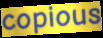
copious